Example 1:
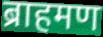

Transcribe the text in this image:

ब्राहमण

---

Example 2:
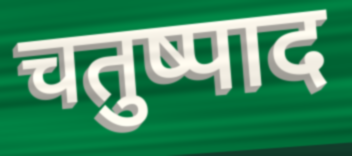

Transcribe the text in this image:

चतुष्पाद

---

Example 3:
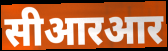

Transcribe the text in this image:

सीआरआर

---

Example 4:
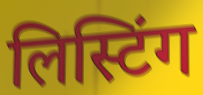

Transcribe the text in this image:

लिस्टिंग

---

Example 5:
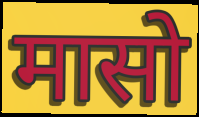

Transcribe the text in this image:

मासो